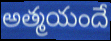
అత్మయందే